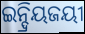
ଇନ୍ଦ୍ରିୟଜୟୀ